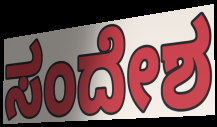
ಸಂದೇಶ